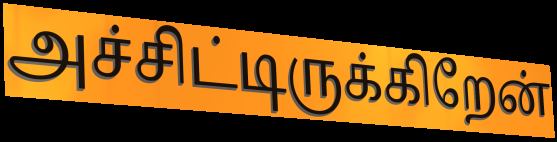
அச்சிட்டிருக்கிறேன்